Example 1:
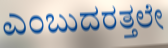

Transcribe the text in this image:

ಎಂಬುದರತ್ತಲೇ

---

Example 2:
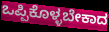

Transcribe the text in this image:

ಒಪ್ಪಿಕೊಳ್ಳಬೇಕಾದ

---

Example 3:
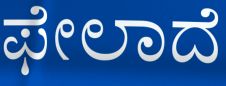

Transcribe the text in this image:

ಫೇಲಾದೆ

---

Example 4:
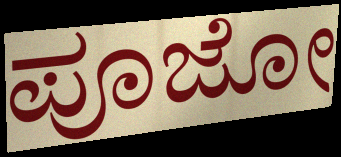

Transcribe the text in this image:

ಪೂಜೋ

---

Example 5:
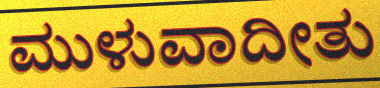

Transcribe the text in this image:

ಮುಳುವಾದೀತು